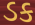
ડક